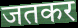
जतकर